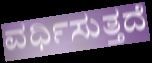
ವರ್ಧಿಸುತ್ತದೆ